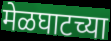
मेळघाटच्या